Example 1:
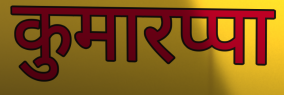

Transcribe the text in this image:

कुमारप्पा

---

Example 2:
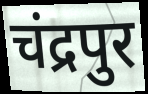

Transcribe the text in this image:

चंद्रपुर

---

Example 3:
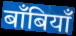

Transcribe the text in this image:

बाँबियाँ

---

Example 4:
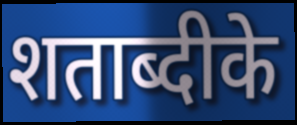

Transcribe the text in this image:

शताब्दीके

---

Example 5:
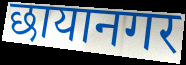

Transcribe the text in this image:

छायानगर